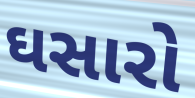
ઘસારો